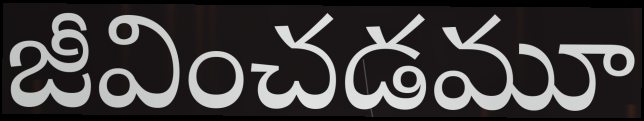
జీవించడమూ